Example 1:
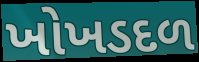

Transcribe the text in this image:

ખોખડદળ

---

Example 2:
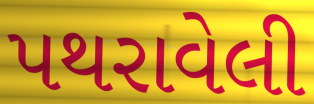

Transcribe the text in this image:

પથરાવેલી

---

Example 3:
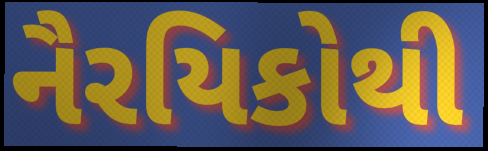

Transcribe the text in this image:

નૈરયિકોથી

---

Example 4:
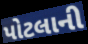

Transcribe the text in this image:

પોટલાની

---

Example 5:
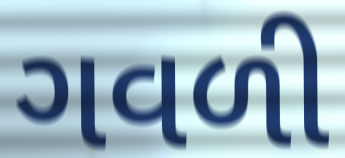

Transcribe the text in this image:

ગવળી